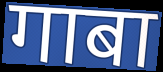
गाबा